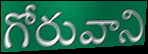
గోరువాని